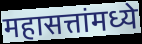
महासत्तांमध्ये